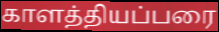
காளத்தியப்பரை